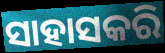
ସାହାସକରି